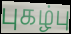
புகழ்பு